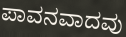
ಪಾವನವಾದವು